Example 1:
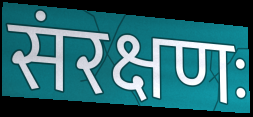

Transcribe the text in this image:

संरक्षणः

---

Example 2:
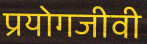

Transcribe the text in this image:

प्रयोगजीवी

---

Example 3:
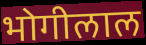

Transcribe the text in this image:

भोगीलाल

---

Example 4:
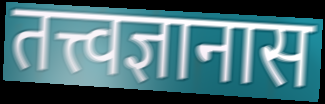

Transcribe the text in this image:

तत्त्वज्ञानास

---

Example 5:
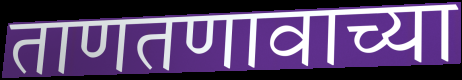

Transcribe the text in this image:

ताणतणावाच्या